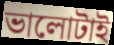
ভালোটাই